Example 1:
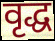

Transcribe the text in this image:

वृद्ध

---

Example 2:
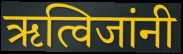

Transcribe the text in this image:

ऋत्विजांनी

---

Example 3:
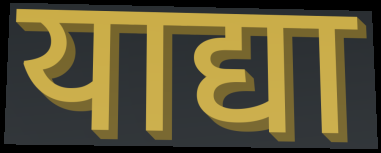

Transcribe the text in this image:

याद्या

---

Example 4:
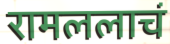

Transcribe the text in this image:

रामललाचं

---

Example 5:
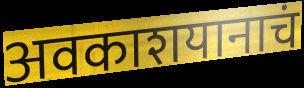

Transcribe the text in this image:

अवकाशयानाचं